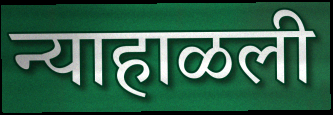
न्याहाळली